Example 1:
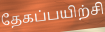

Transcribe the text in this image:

தேகப்பயிற்சி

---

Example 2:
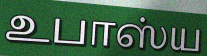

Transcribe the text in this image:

உபாஸ்ய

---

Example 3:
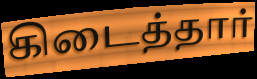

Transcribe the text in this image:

கிடைத்தார்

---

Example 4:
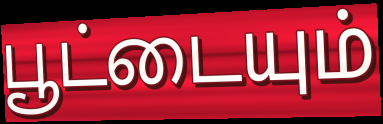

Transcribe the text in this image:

பூட்டையும்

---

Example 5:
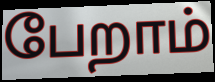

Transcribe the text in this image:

பேறாம்